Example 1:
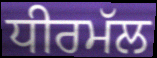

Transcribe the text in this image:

ਧੀਰਮੱਲ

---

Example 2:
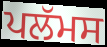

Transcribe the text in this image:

ਪਲੱਮਸ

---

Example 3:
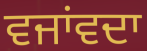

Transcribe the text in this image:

ਵਜਾਂਵਦਾ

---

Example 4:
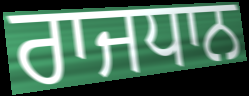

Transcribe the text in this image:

ਰਾਜਧਾਨ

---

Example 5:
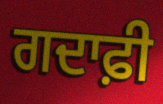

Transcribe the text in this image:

ਗਦਾਫ਼ੀ